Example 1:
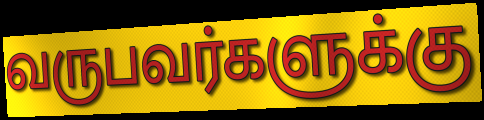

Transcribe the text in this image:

வருபவர்களுக்கு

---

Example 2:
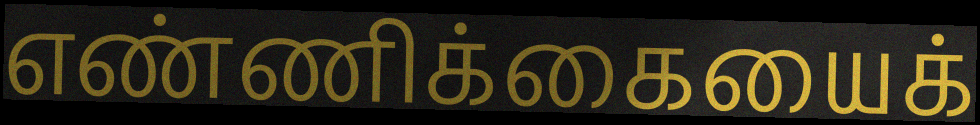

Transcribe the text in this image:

எண்ணிக்கையைக்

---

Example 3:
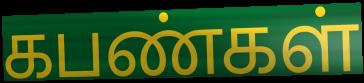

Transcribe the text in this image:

கபண்கள்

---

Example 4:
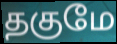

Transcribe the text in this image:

தகுமே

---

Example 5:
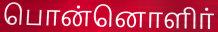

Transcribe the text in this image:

பொன்னொளிர்